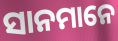
ସାନମାନେ